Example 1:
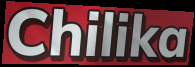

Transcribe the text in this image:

Chilika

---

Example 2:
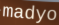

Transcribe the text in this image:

madyo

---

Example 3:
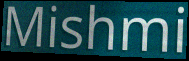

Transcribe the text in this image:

Mishmi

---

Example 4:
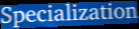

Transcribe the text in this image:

Specialization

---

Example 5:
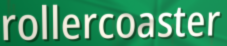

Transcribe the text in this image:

rollercoaster